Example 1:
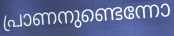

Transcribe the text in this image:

പ്രാണനുണ്ടെന്നോ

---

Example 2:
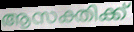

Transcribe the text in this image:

ആസക്തിക്ക്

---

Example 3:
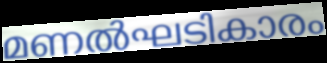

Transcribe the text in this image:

മണൽഘടികാരം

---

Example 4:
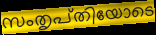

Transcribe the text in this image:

സംതൃപ്‌തിയോടെ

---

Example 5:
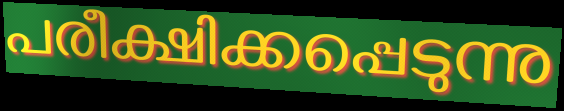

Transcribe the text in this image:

പരീക്ഷിക്കപ്പെടുന്നു